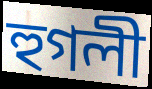
হুগলী